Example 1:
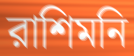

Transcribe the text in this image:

রাশিমনি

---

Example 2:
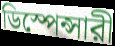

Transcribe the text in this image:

ডিস্পেন্সারী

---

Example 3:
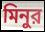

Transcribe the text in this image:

মিনুর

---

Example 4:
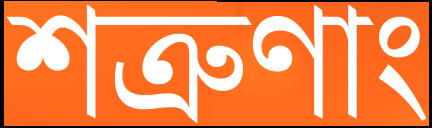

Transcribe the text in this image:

শত্রুণাং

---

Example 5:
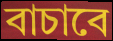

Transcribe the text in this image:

বাচাবে